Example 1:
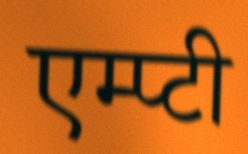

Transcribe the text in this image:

एम्प्टी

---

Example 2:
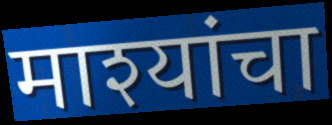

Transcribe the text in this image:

माश्यांचा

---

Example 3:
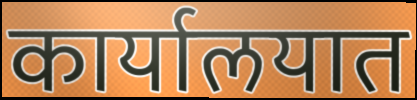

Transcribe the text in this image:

कार्यालयात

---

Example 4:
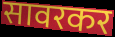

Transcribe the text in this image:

सावरकर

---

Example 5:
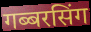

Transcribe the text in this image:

गब्बरसिंग